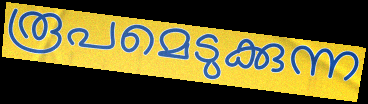
രൂപമെടുക്കുന്ന